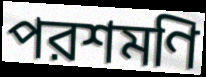
পরশমণি